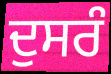
ਦੁਸਰੰ